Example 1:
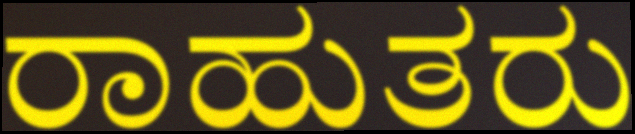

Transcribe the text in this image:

ರಾಹುತರು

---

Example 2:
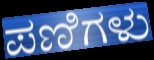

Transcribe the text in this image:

ಪಣಿಗಳು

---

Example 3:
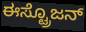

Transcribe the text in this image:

ಈಸ್ಟ್ರೊಜನ್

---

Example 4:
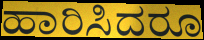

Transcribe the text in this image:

ಹಾರಿಸಿದರೂ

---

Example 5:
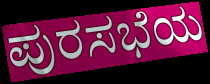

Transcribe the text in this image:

ಪುರಸಭೆಯ